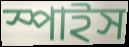
স্পাইস